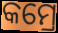
କମ୍ରେ